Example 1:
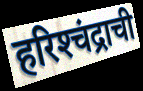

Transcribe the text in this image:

हरिश्‍चंद्राची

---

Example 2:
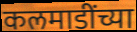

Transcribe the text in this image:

कलमाडींच्या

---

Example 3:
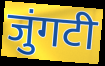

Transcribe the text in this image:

जुंगटी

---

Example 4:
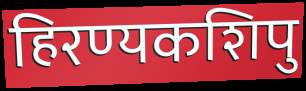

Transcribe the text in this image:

हिरण्यकशिपु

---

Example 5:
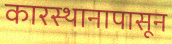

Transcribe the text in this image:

कारस्थानापासून